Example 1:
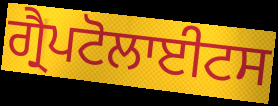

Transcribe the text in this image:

ਗ੍ਰੈਪਟੋਲਾਈਟਸ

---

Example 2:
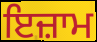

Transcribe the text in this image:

ਇਜ਼ਾਮ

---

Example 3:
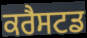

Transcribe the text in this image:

ਕਰੈਸਟਡ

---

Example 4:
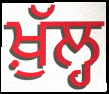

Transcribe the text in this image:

ਖ਼ੁੱਲ੍ਹ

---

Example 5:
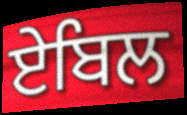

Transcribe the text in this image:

ਏਬਿਲ